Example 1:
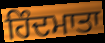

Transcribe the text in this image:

ਹਿੰਦਮਾਤਾ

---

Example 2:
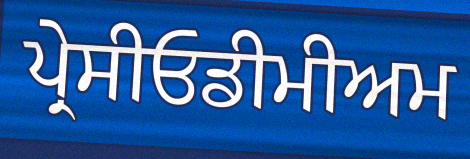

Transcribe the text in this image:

ਪ੍ਰੇਸੀਓਡੀਮੀਅਮ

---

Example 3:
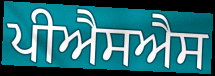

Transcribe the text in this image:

ਪੀਐਸਐਸ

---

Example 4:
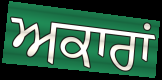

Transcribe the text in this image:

ਅਕਾਰਾਂ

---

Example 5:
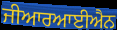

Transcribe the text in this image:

ਜੀਆਰਆਈਐਨ